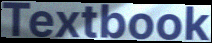
Textbook